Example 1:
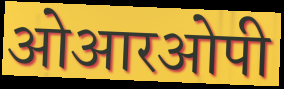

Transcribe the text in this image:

ओआरओपी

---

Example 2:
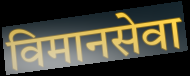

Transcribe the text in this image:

विमानसेवा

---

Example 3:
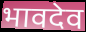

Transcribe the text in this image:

भावदेव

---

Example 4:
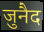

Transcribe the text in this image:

जुनैद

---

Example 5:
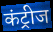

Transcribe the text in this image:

कंट्रीज